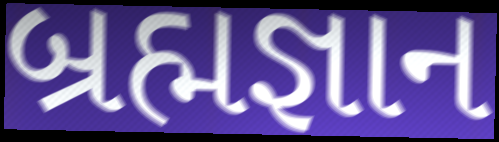
બ્રહ્મજ્ઞાન